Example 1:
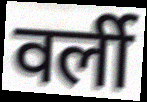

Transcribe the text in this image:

वर्ली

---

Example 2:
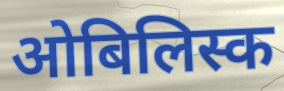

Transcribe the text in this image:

ओबिलिस्क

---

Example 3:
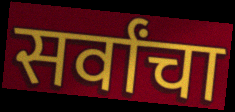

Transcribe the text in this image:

सर्वांचा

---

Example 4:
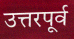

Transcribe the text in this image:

उत्तरपूर्व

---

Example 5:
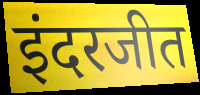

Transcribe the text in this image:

इंदरजीत